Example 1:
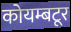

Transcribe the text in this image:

कोयम्‍बटूर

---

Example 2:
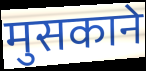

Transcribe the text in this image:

मुसकाने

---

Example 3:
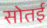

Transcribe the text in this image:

सोतई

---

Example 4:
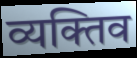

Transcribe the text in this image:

व्यक्तिव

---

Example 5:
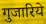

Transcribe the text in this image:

गुजारिये